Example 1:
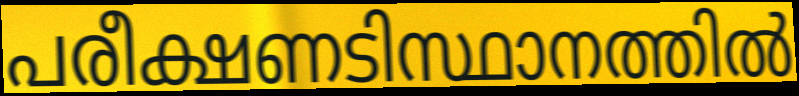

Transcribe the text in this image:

പരീക്ഷണടിസ്ഥാനത്തിൽ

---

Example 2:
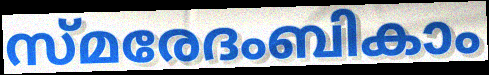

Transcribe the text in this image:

സ്മരേദംബികാം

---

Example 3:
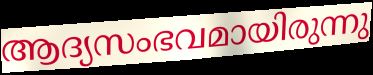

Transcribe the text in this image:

ആദ്യസംഭവമായിരുന്നു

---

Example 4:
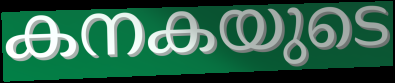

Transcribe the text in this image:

കനകയുടെ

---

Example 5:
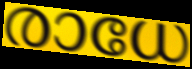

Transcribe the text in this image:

രാധേ